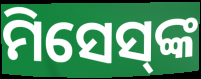
ମିସେସ୍‌ଙ୍କ